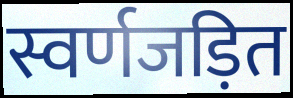
स्वर्णजड़ित